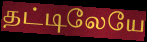
தட்டிலேயே